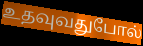
உதவுவதுபோல்